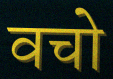
वचो